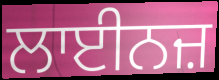
ਲਾਈਨਜ਼